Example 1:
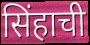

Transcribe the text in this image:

सिंहाची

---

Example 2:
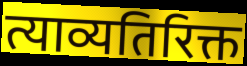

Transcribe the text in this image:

त्याव्यतिरिक्त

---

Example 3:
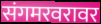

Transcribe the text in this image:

संगमरवरावर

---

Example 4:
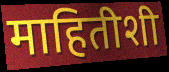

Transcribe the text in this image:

माहितीशी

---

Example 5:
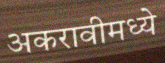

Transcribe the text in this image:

अकरावीमध्ये